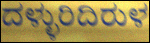
ದಳ್ಳುರಿದಿರುಳ